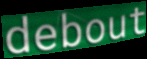
debout